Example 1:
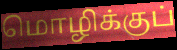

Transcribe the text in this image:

மொழிக்குப்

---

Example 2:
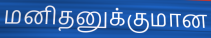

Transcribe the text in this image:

மனிதனுக்குமான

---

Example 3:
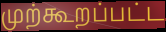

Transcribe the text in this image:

முற்கூறப்பட்ட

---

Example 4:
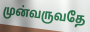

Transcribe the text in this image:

முன்வருவதே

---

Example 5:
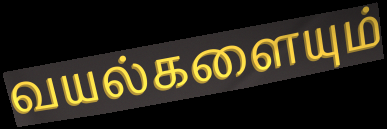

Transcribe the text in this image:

வயல்களையும்